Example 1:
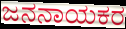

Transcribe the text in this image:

ಜನನಾಯಕರ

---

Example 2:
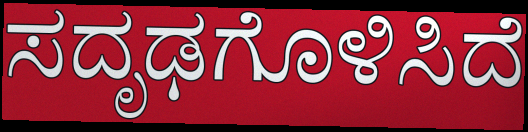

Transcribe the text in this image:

ಸದೃಢಗೊಳಿಸಿದೆ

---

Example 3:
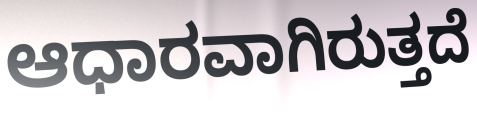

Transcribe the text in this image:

ಆಧಾರವಾಗಿರುತ್ತದೆ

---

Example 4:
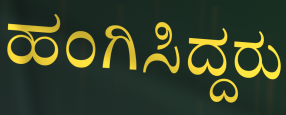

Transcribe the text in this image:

ಹಂಗಿಸಿದ್ದರು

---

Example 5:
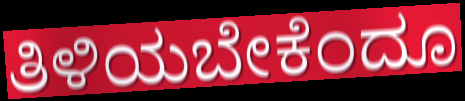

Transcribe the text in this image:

ತಿಳಿಯಬೇಕೆಂದೂ